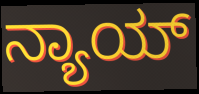
ನ್ಯಾಯ್